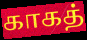
காகத்